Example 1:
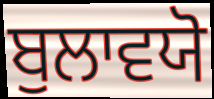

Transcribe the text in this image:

ਬੁਲਾਵਯੋ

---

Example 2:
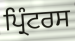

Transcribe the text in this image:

ਪ੍ਰਿੰਟਰਸ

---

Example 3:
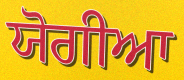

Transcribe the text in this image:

ਯੋਗੀਆ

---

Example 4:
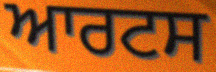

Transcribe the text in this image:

ਆਰਟਸ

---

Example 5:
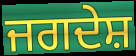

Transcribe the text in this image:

ਜਗਦੇਸ਼